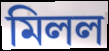
মিলল